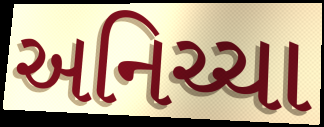
અનિચ્ચા